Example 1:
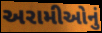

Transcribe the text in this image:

અરામીઓનું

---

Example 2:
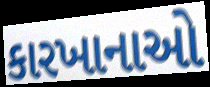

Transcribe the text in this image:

કારખાનાઓ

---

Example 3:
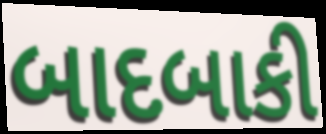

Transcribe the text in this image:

બાદબાકી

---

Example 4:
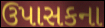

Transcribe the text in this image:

ઉપાસકના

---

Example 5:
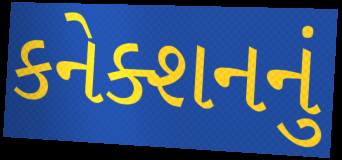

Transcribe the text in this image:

કનેક્શનનું